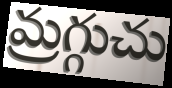
మ్రగ్గుచు